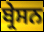
ਬ੍ਰੇਸਨ